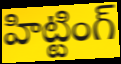
హిట్టింగ్